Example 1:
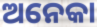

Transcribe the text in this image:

ଅନେକା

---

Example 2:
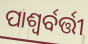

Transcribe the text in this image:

ପାଶ୍ୱର୍ବର୍ତ୍ତୀ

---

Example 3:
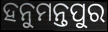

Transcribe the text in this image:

ହନୁମନ୍ତପୁର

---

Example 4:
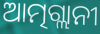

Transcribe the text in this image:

ଆତ୍ମଗ୍ଲାନୀ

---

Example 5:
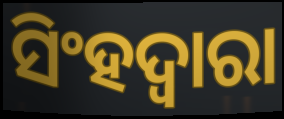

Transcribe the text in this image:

ସିଂହଦ୍ୱାରା